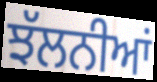
ਝੱਲਨੀਆਂ